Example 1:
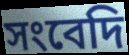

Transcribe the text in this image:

সংবেদি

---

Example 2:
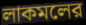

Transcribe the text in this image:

লাকমলের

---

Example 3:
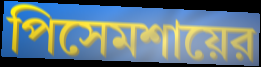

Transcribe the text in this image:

পিসেমশায়ের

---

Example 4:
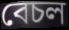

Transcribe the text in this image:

বেচল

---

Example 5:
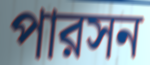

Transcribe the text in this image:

পারসন